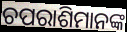
ଚପରାଶିମାନଙ୍କ